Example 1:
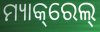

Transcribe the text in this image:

ମ୍ୟାକ୍‌ରେଲ୍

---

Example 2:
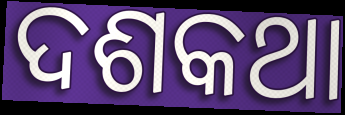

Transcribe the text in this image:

ଦଶକଥା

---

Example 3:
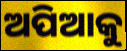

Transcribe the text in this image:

ଅପିଆକୁ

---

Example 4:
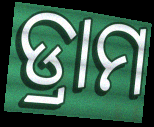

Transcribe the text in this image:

ଡ୍ରାମ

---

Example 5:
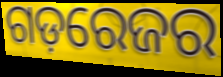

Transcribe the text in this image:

ଗଡ଼ରେଜର